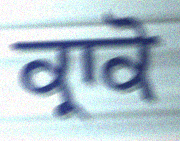
ਕ੍ਰਾਕੋ